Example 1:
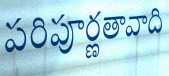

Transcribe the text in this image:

పరిపూర్ణతావాది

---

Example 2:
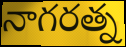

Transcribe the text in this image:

నాగరత్న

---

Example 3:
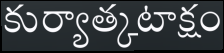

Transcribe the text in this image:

కుర్యాత్కటాక్షం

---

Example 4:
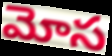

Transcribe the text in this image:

మోస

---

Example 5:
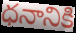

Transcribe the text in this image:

ధనానికి